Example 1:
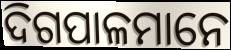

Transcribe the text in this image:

ଦିଗପାଳମାନେ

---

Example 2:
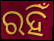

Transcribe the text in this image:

ରହିଁ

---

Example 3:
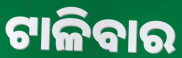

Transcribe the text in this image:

ଟାଳିବାର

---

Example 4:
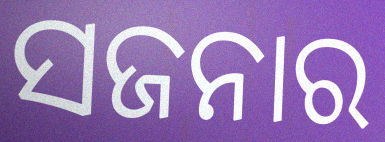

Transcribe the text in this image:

ସଜନାର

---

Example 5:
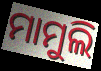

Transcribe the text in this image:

ମାମୁଲି